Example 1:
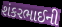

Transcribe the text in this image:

શંકરભાઈની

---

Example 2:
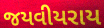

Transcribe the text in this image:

જયવીયરાય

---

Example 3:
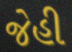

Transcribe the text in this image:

જેહી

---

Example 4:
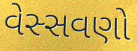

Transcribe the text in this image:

વેસ્સવણો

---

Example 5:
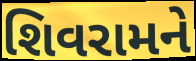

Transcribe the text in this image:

શિવરામને